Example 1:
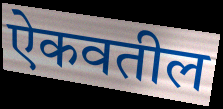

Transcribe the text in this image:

ऐकवतील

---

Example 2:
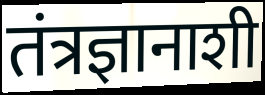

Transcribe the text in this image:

तंत्रज्ञानाशी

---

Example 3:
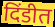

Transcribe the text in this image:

दिंडीत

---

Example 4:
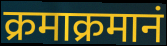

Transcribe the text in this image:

क्रमाक्रमानं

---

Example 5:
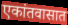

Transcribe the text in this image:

एकांतवासात